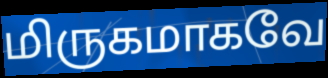
மிருகமாகவே